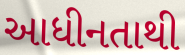
આધીનતાથી